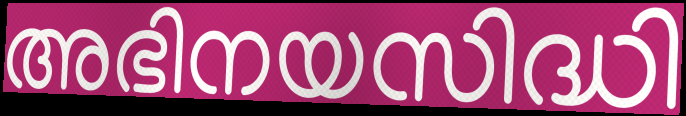
അഭിനയസിദ്ധി